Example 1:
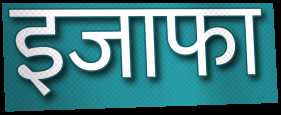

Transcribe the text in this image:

इजाफा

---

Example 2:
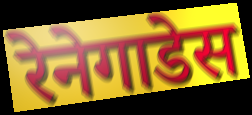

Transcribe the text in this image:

रेनेगाडेस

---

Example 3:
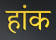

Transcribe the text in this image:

हांक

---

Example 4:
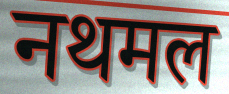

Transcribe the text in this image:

नथमल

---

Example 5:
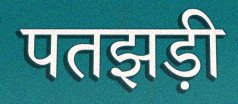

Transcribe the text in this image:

पतझड़ी